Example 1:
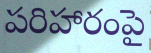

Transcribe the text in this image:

పరిహారంపై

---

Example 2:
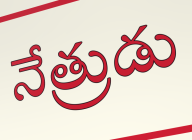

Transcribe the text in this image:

నేత్రుడు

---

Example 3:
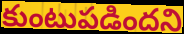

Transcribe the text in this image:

కుంటుపడిందని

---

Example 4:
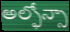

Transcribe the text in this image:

అల్ఫోన్సా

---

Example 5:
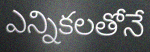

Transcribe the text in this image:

ఎన్నికలతోనే